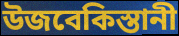
উজবেকিস্তানী